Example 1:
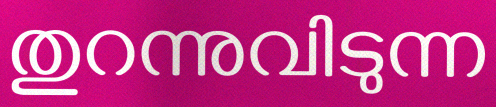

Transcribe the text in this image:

തുറന്നുവിടുന്ന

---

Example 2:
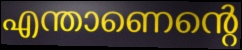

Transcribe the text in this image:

എന്താണെന്റെ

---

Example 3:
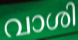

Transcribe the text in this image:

വാശി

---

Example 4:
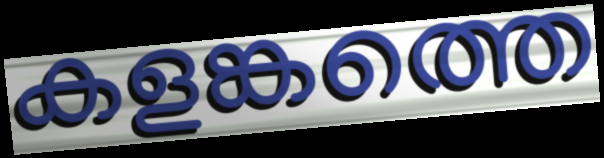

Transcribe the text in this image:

കളങ്കത്തെ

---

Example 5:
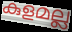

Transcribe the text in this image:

കുളമല്ല